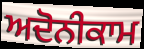
ਅਦੋਨੀਕਾਮ